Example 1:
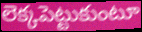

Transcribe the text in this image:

లెక్కపెట్టుకుంటూ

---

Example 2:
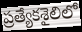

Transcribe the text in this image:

ప్రత్యేకశైలిలో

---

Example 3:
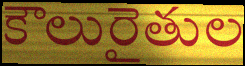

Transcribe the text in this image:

కౌలురైతుల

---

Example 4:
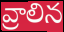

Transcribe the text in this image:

వ్రాలిన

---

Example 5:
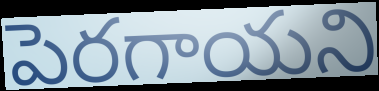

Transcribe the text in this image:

పెరగాయని